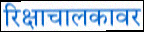
रिक्षाचालकावर